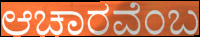
ಆಚಾರವೆಂಬ